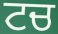
ਟਚ